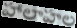
హాలాహల